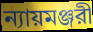
ন্যায়মঞ্জরী